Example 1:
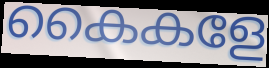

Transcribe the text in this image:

കൈകളേ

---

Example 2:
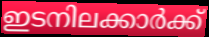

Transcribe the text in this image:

ഇടനിലക്കാർക്ക്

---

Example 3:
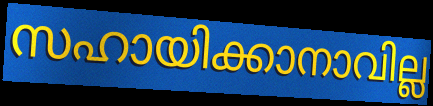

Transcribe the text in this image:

സഹായിക്കാനാവില്ല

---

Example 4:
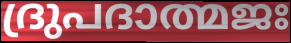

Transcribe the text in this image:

ദ്രുപദാത്മജഃ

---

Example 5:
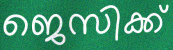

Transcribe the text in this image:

ജെസിക്ക്